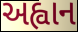
અહ્વાન